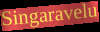
Singaravelu